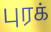
புரக்